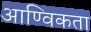
आण्विकता